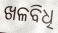
ଖଳବିଧି